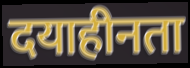
दयाहीनता